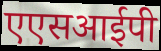
एएसआईपी